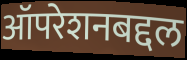
ऑपरेशनबद्दल